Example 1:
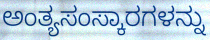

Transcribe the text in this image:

ಅಂತ್ಯಸಂಸ್ಕಾರಗಳನ್ನು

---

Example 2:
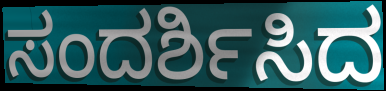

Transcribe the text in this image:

ಸಂದರ್ಶಿಸಿದ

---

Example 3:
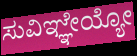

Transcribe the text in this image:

ಸುವಿಞ್ಞೇಯ್ಯೋ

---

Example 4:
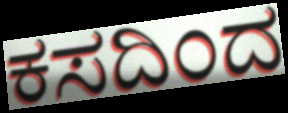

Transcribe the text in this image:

ಕಸದಿಂದ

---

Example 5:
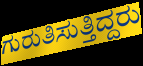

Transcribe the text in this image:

ಗುರುತಿಸುತ್ತಿದ್ದರು